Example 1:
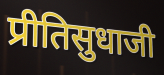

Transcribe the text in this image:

प्रीतिसुधाजी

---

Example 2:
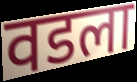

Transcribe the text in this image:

वडला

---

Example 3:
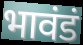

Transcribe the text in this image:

भावंडं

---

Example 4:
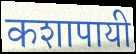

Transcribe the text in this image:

कशापायी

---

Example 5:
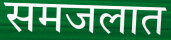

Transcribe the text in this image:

समजलात